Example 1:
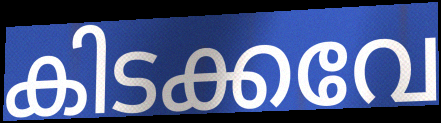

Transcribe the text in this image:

കിടക്കവേ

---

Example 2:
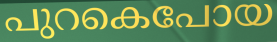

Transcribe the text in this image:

പുറകെപോയ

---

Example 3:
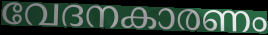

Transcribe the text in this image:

വേദനകാരണം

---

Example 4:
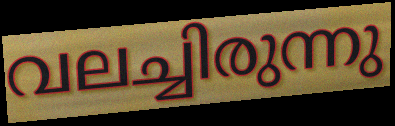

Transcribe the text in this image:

വലച്ചിരുന്നു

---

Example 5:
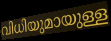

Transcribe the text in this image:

വിധിയുമായുള്ള